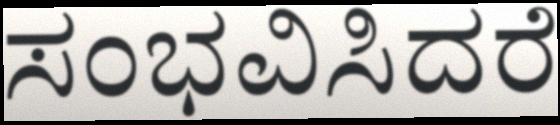
ಸಂಭವಿಸಿದರೆ